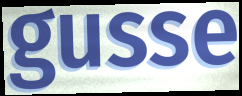
gusse